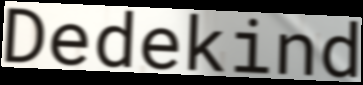
Dedekind